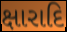
ક્ષારાદિ